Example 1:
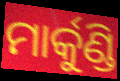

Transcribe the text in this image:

ମାର୍କୁଣ୍ଡି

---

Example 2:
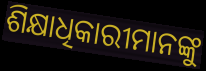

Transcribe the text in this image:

ଶିକ୍ଷାଧିକାରୀମାନଙ୍କୁ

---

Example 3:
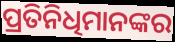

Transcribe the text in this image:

ପ୍ରତିନିଧିମାନଙ୍କର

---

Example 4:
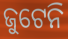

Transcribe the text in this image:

ଜୁଟେନି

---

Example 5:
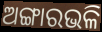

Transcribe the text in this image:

ଅଙ୍ଗାରଭଳି